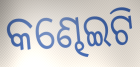
କଣ୍ଢେଇଟି